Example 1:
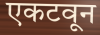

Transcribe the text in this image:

एकटवून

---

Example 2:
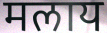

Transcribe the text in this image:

मलाय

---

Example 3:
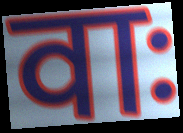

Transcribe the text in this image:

वाः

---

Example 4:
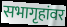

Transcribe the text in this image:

सभागृहांवर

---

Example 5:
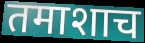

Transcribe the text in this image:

तमाशाच